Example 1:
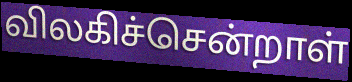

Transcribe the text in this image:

விலகிச்சென்றாள்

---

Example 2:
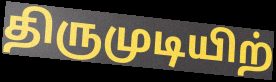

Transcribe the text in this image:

திருமுடியிற்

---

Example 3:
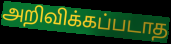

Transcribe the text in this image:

அறிவிக்கப்படாத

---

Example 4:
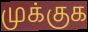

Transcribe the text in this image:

முக்குக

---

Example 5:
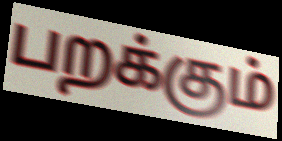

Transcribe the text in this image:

பறக்கும்